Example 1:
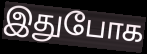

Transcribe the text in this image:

இதுபோக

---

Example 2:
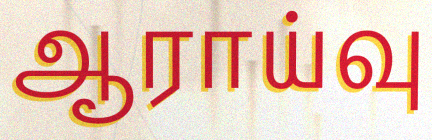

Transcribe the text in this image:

ஆராய்வு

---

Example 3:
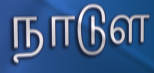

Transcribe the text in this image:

நாடுள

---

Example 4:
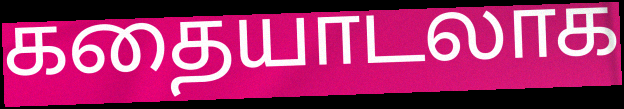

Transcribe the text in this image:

கதையாடலாக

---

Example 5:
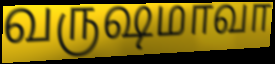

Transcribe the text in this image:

வருஷமாவா